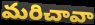
మరిచావా